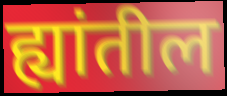
ह्यांतील